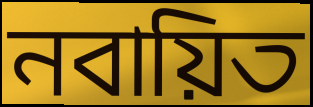
নবায়িত